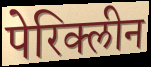
पेरिक्लीन